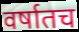
वर्षातच